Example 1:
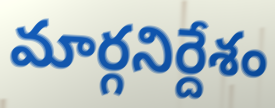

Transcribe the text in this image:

మార్గనిర్దేశం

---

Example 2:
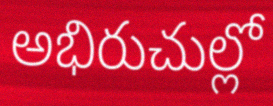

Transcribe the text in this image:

అభిరుచుల్లో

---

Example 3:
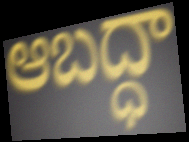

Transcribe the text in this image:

ఆబద్ధా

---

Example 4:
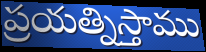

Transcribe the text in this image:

ప్రయత్నిస్తాము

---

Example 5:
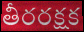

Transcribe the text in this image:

తీరరక్షక